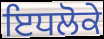
ਇਧਲੋਕੇ